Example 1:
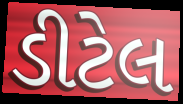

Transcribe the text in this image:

ડીટેલ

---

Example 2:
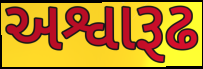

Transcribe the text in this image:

અશ્વારૂઢ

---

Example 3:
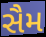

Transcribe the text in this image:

સૈમ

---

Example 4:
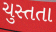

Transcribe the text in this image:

ચુસ્તતા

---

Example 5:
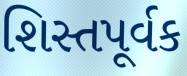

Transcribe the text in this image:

શિસ્તપૂર્વક